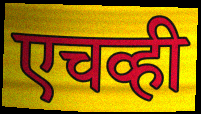
एचव्ही